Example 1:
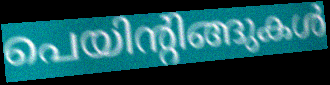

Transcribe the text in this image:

പെയിന്റിങ്ങുകൾ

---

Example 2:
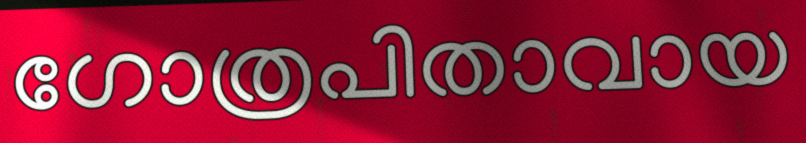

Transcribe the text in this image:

ഗോത്രപിതാവായ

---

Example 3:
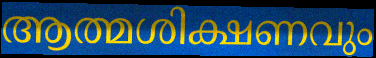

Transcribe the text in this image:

ആത്മശിക്ഷണവും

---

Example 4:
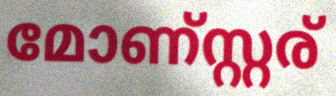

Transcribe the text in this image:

മോണ്സ്റ്റര്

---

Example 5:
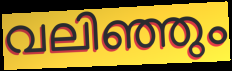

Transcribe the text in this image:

വലിഞ്ഞും